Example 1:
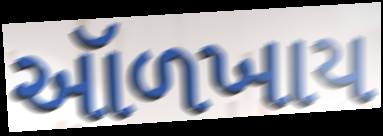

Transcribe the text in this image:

ઑળખાય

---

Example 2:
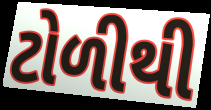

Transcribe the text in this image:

ટોળીથી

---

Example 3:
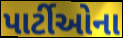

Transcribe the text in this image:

પાર્ટીઓના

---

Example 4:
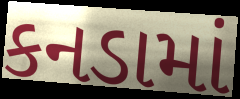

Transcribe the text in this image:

કનડામાં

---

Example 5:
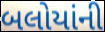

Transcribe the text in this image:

બલોયાંની